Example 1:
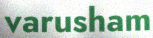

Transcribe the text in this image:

varusham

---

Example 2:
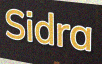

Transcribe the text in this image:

Sidra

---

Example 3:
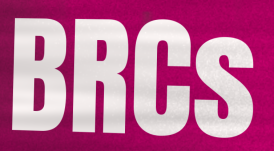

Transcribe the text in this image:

BRCs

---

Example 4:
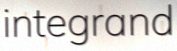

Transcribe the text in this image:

integrand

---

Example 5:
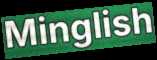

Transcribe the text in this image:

Minglish